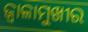
ଜ୍ୱାଳାମୁଖୀର